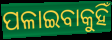
ପଳାଇବାକୁହିଁ